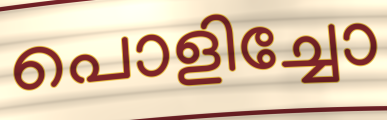
പൊളിച്ചോ